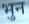
भुन